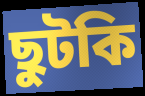
ছুটকি